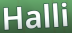
Halli